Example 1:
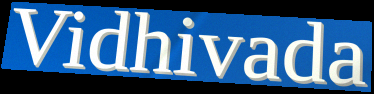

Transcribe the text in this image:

Vidhivada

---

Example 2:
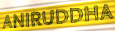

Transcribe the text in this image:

ANIRUDDHA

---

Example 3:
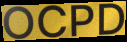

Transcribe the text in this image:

OCPD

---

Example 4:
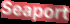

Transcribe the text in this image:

Seaport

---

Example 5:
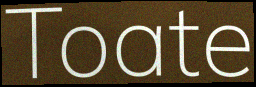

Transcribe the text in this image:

Toate